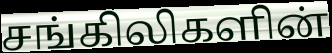
சங்கிலிகளின்